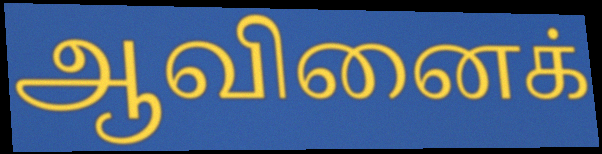
ஆவினைக்